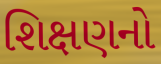
શિક્ષણનો